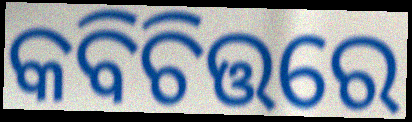
କବିଚିତ୍ତରେ